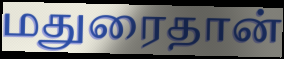
மதுரைதான்